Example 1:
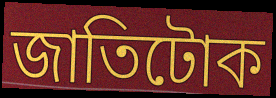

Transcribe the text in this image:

জাতিটোক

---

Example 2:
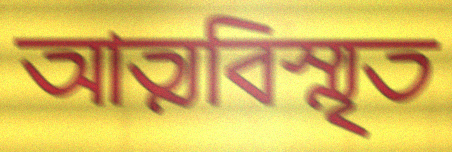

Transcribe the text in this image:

আত্মবিস্মৃত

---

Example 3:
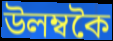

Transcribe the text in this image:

উলম্বকৈ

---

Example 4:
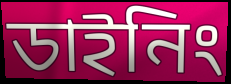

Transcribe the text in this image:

ডাইনিং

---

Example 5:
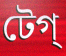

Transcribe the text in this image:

টেগ্